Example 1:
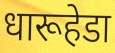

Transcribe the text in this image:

धारूहेडा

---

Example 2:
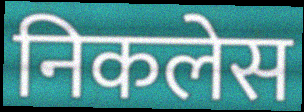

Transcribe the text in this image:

निकलेस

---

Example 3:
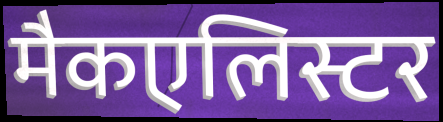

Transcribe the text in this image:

मैकएलिस्टर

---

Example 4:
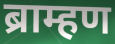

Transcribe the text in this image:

ब्राम्हण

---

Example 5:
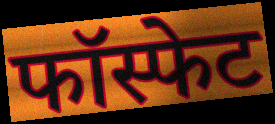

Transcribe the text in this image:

फॉस्फेट